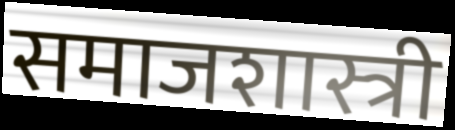
समाजशास्त्री